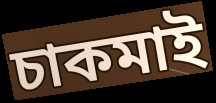
চাকমাই